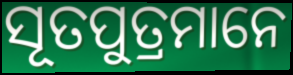
ସୂତପୁତ୍ରମାନେ